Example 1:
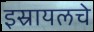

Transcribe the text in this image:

इस्रायलचे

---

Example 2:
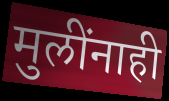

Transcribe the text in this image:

मुलींनाही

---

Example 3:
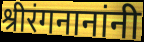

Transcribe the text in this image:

श्रीरंगनानांनी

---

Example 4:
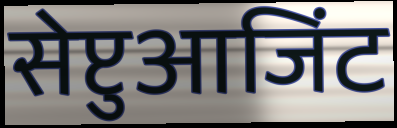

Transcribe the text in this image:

सेप्टुआजिंट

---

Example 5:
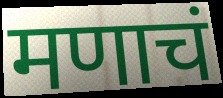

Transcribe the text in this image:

मणाचं